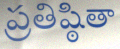
ప్రతిష్ఠితా